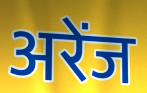
अरेंज